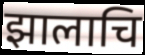
झालाचि